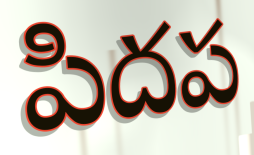
పిదప